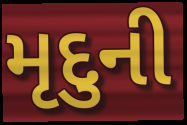
મૃદુની